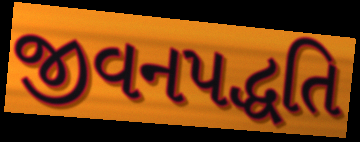
જીવનપદ્ધતિ